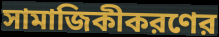
সামাজিকীকরণের